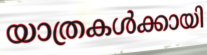
യാത്രകൾക്കായി